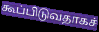
கூப்பிடுவதாகச்